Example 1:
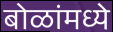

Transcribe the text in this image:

बोळांमध्ये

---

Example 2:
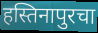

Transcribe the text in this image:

हस्तिनापुरचा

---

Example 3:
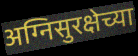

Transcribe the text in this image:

अग्निसुरक्षेच्या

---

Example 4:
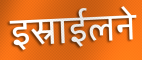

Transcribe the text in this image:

इस्राईलने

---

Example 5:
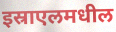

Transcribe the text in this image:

इस्राएलमधील